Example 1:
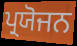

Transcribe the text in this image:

ਪ੍ਰਯੋਜਨ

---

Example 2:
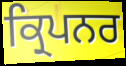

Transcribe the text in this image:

ਕ੍ਰਿਪਨਰ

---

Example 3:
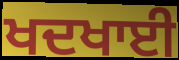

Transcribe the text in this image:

ਖਦਖਾਈ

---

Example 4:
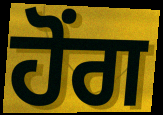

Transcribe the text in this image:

ਹੋਂਗ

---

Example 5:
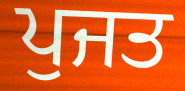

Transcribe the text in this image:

ਪੁਜਤ